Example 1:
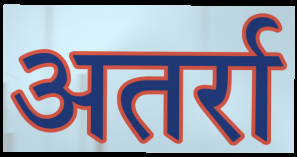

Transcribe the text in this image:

अतर्रा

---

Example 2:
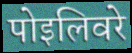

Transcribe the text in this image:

पोइलिवरे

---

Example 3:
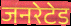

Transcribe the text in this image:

जनरेटेड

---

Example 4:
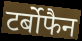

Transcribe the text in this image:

टर्बोफैन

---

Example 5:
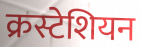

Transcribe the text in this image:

क्रस्टेशियन